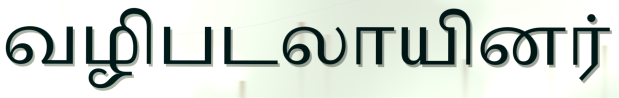
வழிபடலாயினர்